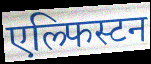
एल्फिस्टन